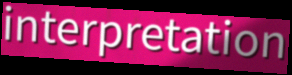
interpretation